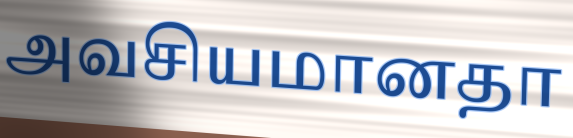
அவசியமானதா